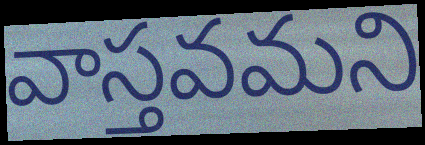
వాస్తవమని